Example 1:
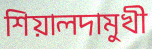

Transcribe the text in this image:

শিয়ালদামুখী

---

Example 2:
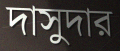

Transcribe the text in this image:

দাসুদার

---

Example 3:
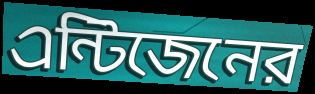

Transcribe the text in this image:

এন্টিজেনের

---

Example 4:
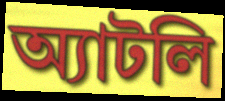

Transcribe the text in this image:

অ্যাটলি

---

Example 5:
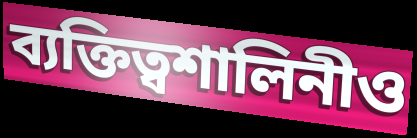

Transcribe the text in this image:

ব্যক্তিত্বশালিনীও